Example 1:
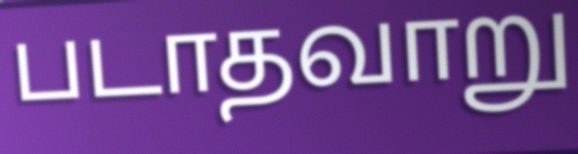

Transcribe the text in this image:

படாதவாறு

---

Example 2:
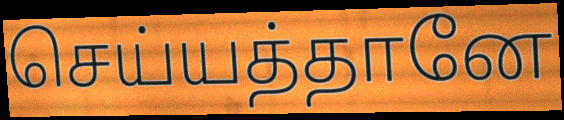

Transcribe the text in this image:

செய்யத்தானே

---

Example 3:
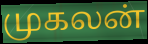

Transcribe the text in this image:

முகலன்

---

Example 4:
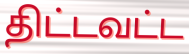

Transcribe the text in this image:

திட்டவட்ட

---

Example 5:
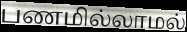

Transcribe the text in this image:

பணமில்லாமல்